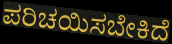
ಪರಿಚಯಿಸಬೇಕಿದೆ